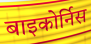
बाइकोर्निस